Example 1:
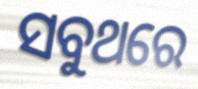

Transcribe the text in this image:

ସବୁଥରେ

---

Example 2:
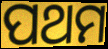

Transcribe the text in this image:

ପଥମ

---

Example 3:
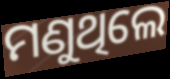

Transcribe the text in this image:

ମଣୁଥିଲେ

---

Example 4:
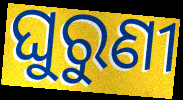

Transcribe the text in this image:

ଘୁରୁଣୀ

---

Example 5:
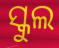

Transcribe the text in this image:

ସ୍କୁଲ